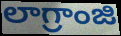
లాగ్రాంజి